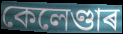
কেলেণ্ডাৰ